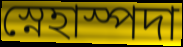
স্নেহাস্পদা